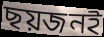
ছয়জনই